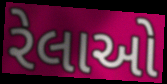
રેલાઓ